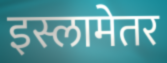
इस्लामेतर